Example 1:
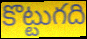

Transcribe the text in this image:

కొట్టుగది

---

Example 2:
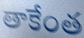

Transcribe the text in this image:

తాకేంత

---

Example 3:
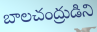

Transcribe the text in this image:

బాలచంద్రుడిని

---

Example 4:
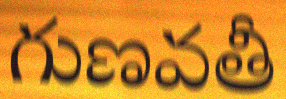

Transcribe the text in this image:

గుణవతీ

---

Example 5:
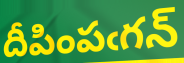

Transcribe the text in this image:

దీపింపఁగన్